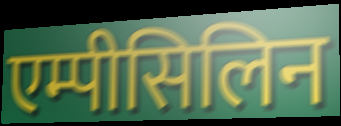
एम्पीसिलिन